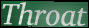
Throat